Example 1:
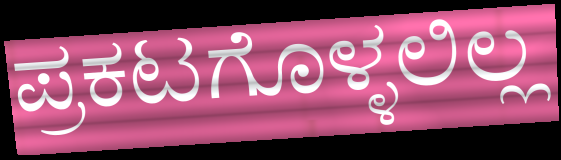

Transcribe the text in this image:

ಪ್ರಕಟಗೊಳ್ಳಲಿಲ್ಲ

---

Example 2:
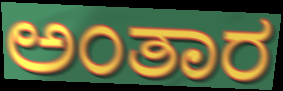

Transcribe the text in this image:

ಅಂತಾರ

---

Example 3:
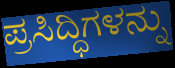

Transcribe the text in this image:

ಪ್ರಸಿದ್ಧಿಗಳನ್ನು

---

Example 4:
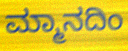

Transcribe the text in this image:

ಮ್ಮಾನದಿಂ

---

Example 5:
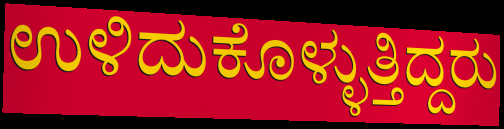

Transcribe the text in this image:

ಉಳಿದುಕೊಳ್ಳುತ್ತಿದ್ದರು